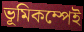
ভূমিকম্পেই